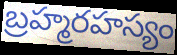
బ్రహ్మరహస్యం